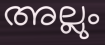
അല്ലും